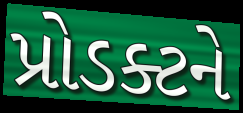
પ્રોડક્ટને